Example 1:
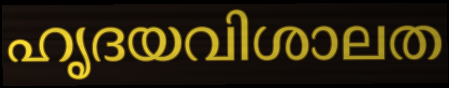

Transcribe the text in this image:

ഹൃദയവിശാലത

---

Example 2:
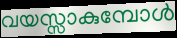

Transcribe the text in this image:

വയസ്സാകുമ്പോൾ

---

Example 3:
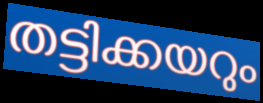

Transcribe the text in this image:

തട്ടിക്കയറും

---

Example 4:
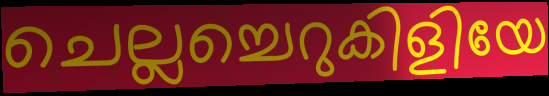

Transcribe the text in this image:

ചെല്ലച്ചെറുകിളിയേ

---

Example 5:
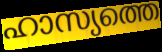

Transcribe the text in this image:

ഹാസ്യത്തെ